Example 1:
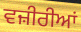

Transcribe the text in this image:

ਵਜ਼ੀਰੀਆਂ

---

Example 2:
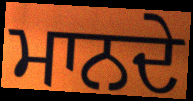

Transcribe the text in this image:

ਮਾਨਦੇ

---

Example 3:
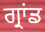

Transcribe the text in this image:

ਗ੍ਰਾਂਡ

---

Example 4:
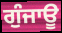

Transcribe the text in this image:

ਗੁੰਜਾਊ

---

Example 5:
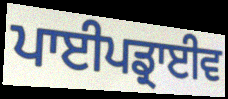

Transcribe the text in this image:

ਪਾਈਪਡ੍ਰਾਈਵ